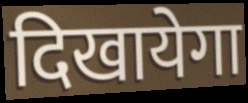
दिखायेगा